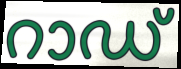
റാഡ്